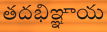
తదభిఞ్ఞాయ